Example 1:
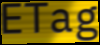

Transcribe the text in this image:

ETag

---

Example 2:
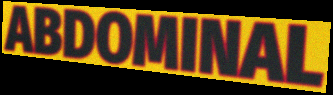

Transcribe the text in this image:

ABDOMINAL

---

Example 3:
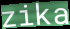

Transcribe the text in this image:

zika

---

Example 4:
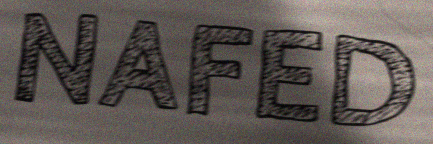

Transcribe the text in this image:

NAFED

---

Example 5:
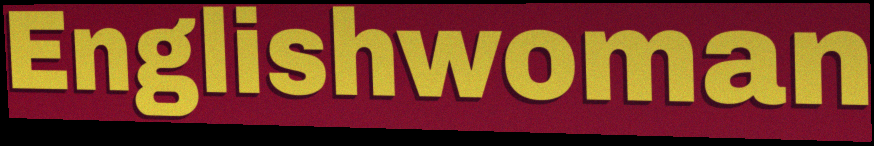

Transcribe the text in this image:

Englishwoman